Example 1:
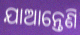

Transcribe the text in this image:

ଯାଆନ୍ତେଣି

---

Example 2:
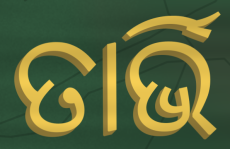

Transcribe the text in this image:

ତାର୍ଭି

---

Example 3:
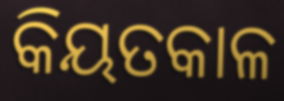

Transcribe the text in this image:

କିୟତକାଳ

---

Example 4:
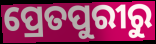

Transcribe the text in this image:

ପ୍ରେତପୁରୀରୁ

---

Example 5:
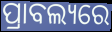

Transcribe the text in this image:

ପ୍ରାବଲ୍ୟରେ